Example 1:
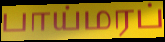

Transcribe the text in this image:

பாய்மரப்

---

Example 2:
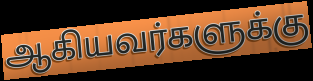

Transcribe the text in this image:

ஆகியவர்களுக்கு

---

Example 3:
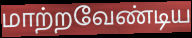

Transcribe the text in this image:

மாற்றவேண்டிய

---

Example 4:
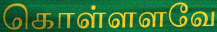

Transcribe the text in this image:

கொள்ளளவே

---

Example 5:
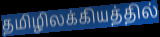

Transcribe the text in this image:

தமிழிலக்கியத்தில்